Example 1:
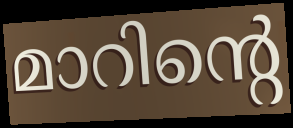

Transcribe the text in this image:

മാറിന്റെ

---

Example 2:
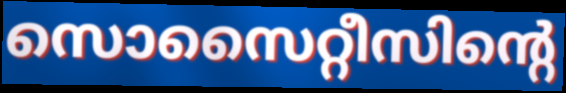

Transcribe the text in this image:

സൊസൈറ്റീസിന്റെ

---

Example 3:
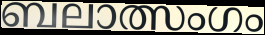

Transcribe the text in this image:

ബലാത്സംഗം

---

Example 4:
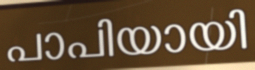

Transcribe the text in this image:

പാപിയായി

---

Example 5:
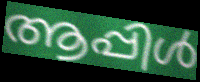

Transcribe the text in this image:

ആപ്പിൾ